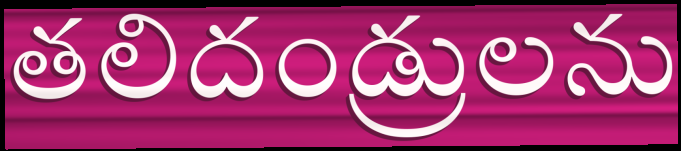
తలిదండ్రులను